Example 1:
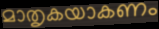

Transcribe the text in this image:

മാതൃകയാകണം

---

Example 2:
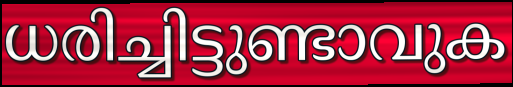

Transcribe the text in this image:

ധരിച്ചിട്ടുണ്ടാവുക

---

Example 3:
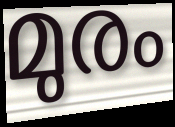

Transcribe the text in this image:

മുരം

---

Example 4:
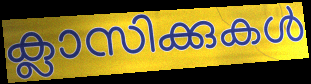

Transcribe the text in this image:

ക്ലാസിക്കുകൾ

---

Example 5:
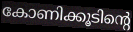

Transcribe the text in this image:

കോണിക്കൂടിന്റെ